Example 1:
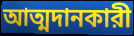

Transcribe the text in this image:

আত্মদানকারী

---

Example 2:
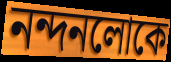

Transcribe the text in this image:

নন্দনলোকে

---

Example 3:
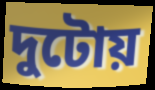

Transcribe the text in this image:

দুটোয়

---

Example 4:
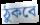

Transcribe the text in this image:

ঠুকবে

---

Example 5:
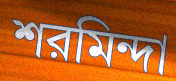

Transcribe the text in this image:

শরমিন্দা